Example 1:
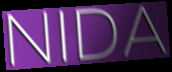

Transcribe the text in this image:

NIDA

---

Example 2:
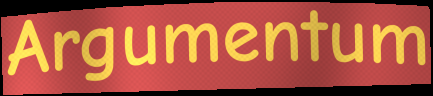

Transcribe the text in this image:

Argumentum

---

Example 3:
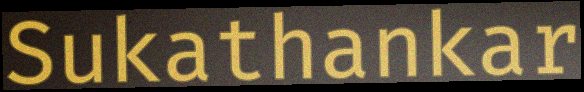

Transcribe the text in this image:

Sukathankar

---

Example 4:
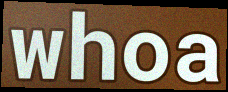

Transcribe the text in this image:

whoa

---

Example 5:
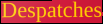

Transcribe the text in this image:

Despatches